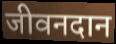
जीवनदान